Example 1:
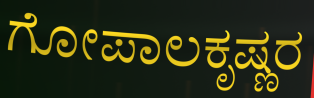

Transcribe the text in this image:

ಗೋಪಾಲಕೃಷ್ಣರ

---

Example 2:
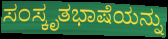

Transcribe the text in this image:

ಸಂಸ್ಕೃತಭಾಷೆಯನ್ನು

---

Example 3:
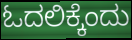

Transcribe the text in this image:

ಓದಲಿಕ್ಕೆಂದು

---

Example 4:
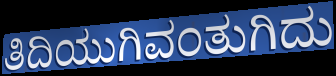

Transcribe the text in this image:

ತಿದಿಯುಗಿವಂತುಗಿದು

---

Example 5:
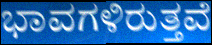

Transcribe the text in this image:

ಭಾವಗಳಿರುತ್ತವೆ